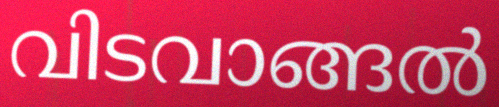
വിടവാങ്ങൽ